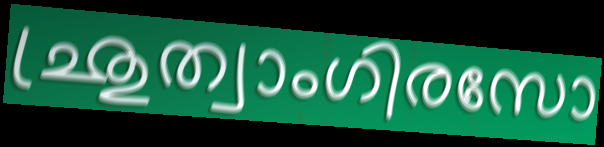
ഛ്രുത്വാംഗിരസോ